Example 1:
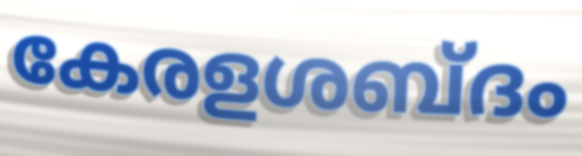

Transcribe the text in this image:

കേരളശബ്ദം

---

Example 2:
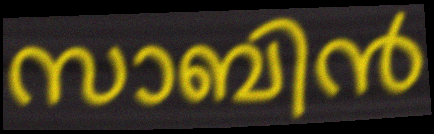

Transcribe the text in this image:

സാബിൻ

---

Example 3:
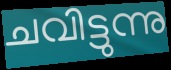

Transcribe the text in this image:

ചവിട്ടുന്നു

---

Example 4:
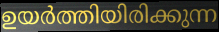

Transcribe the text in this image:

ഉയർത്തിയിരിക്കുന്ന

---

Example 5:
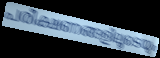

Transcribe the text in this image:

പരീക്ഷണങ്ങളിലൂടെയും